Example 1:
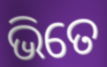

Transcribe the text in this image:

ଭିତେ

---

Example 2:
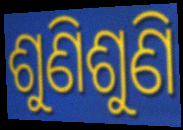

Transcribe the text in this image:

ଶୁଣିଶୁଣି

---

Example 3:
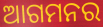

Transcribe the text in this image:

ଆଗମନର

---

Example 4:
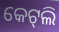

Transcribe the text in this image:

କେଟ୍‍ଲି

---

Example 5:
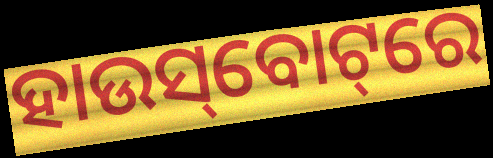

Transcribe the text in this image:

ହାଉସ୍‌ବୋଟ୍‌ରେ